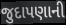
જુદાપણાની